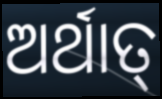
ଅର୍ଥାତ୍